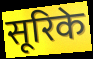
सूरिके